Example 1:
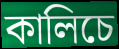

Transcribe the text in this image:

কালিচে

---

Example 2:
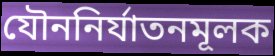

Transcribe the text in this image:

যৌননির্যাতনমূলক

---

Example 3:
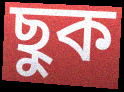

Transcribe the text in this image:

ছুক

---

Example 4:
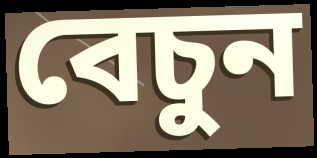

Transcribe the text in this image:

বেচুন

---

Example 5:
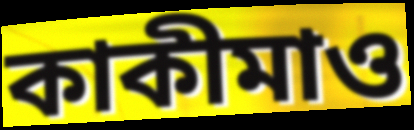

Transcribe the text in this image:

কাকীমাও